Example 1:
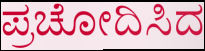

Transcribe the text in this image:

ಪ್ರಚೋದಿಸಿದ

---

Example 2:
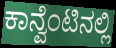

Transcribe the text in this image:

ಕಾನ್ವೆಂಟಿನಲ್ಲಿ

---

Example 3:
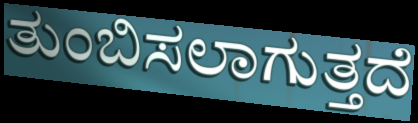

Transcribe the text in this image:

ತುಂಬಿಸಲಾಗುತ್ತದೆ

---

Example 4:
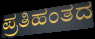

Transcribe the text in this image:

ಪ್ರತಿಹಂತದ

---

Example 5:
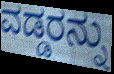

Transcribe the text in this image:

ವಡ್ಡರನ್ನು